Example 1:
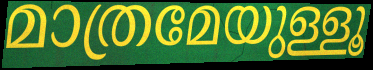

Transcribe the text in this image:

മാത്രമേയുള്ളൂ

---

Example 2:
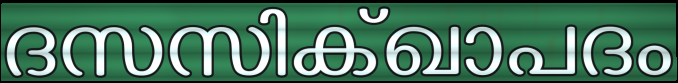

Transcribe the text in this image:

ദസസിക്ഖാപദം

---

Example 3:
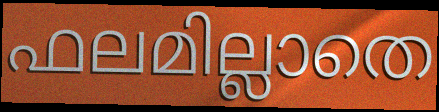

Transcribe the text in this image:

ഫലമില്ലാതെ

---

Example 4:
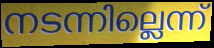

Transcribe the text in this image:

നടന്നില്ലെന്ന്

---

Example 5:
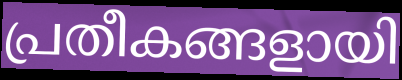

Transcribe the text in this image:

പ്രതീകങ്ങളായി